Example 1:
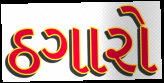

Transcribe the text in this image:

ઠગારો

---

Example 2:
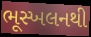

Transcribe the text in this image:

ભૂસ્ખલનથી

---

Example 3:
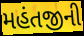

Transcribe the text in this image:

મહંતજીની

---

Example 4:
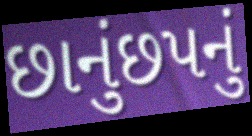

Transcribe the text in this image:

છાનુંછપનું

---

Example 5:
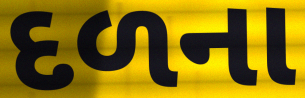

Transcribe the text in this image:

દળના